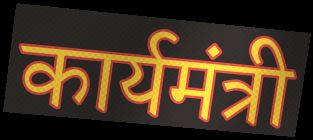
कार्यमंत्री